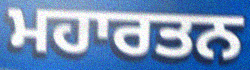
ਮਹਾਰਤਨ